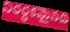
నిరర్ధకమైనది